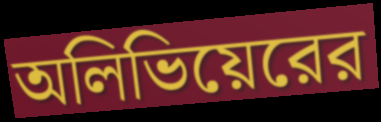
অলিভিয়েরের